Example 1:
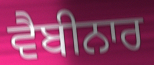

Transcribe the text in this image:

ਵੈਬੀਨਾਰ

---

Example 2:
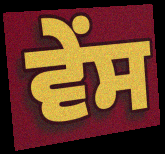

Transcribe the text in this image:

ਵੇਂਸ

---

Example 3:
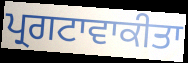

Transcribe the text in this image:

ਪ੍ਰਗਟਾਵਾਕੀਤਾ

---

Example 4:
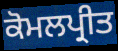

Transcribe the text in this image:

ਕੋਮਲਪ੍ਰੀਤ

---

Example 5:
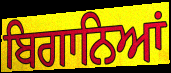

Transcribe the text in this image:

ਬਿਗਾਨਿਆਂ